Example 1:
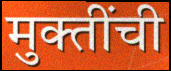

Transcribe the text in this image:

मुक्तींची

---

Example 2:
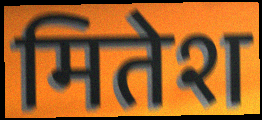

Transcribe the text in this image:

मितेश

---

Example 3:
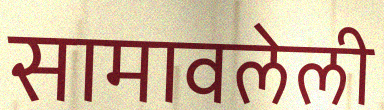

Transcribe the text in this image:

सामावलेली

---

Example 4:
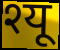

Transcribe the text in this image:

श्यू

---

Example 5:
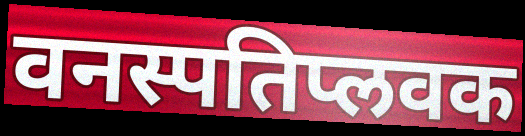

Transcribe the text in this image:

वनस्पतिप्लवक